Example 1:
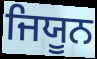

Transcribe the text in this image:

ਜਿਯੂਨ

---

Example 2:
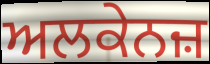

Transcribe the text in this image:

ਅਲਕੇਨਜ਼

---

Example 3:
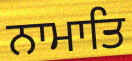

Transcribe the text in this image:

ਨਾਮਾਤਿ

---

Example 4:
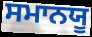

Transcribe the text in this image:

ਸਮਾਨਯੂ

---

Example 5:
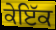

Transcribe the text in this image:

ਕੇਇੱਕ